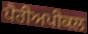
ਪੈਰੀਅਪੀਕਲ